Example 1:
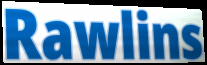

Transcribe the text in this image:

Rawlins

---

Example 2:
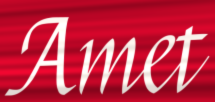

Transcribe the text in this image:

Amet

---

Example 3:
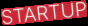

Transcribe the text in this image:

STARTUP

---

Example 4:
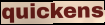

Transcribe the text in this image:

quickens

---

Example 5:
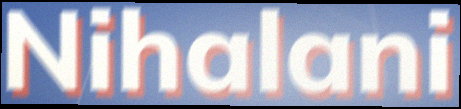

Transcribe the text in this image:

Nihalani